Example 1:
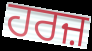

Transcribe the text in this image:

ਹਰਜ਼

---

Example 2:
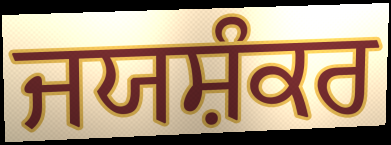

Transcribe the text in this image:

ਜਯਸ਼ੰਕਰ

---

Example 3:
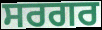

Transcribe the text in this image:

ਸਰਗਰ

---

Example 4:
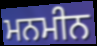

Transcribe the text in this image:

ਮਨਮੀਨ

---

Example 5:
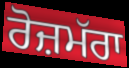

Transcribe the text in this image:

ਰੋਜ਼ਮੱਰਾ